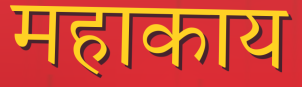
महाकाय